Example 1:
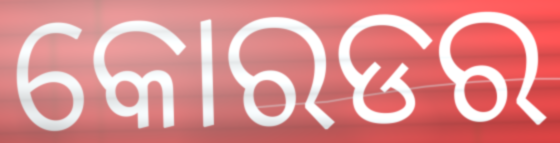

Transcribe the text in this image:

କୋରଡର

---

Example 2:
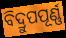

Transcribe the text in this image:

ବିଦ୍ରୁପପୂର୍ଣ୍ଣ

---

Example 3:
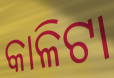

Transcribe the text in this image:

କାଳିଟା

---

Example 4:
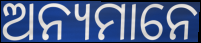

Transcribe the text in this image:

ଅନ୍ଯମାନେ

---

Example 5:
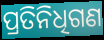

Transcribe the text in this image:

ପ୍ରତିନିଧିଗଣ